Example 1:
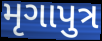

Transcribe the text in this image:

મૃગાપુત્ર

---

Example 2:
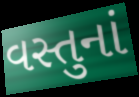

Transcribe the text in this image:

વસ્તુનાં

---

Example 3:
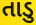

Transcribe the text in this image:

તાડુ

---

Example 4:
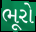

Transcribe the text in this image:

ભૂરો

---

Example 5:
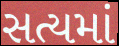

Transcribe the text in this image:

સત્યમાં